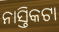
ନାସ୍ତିକଟା